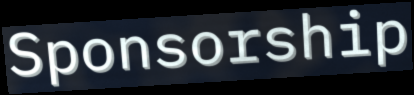
Sponsorship